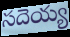
సదెయ్య